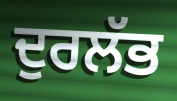
ਦੁਰਲੱਭ